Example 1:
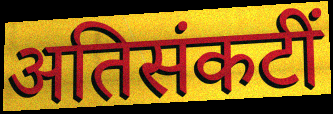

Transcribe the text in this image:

अतिसंकटीं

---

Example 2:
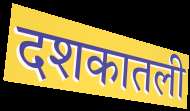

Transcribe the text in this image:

दशकातली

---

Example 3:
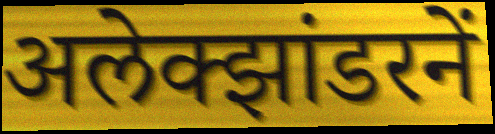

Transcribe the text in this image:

अलेक्झांडरनें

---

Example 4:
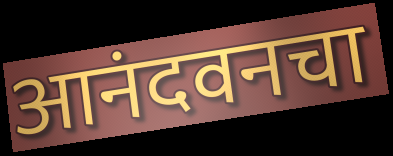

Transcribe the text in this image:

आनंदवनचा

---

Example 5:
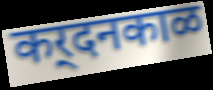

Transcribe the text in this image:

कर्दनकाळ